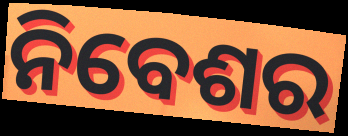
ନିବେଶର